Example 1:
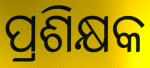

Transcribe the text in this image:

ପ୍ରଶିକ୍ଷକ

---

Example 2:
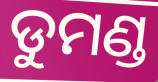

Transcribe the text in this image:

ଡୁମଣ୍ଡ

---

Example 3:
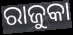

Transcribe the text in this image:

ରାଜୁକା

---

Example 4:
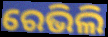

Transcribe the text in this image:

ରେଭିଲି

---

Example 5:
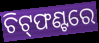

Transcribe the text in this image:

ଚିଟ୍‌ଫଣ୍ଟରେ